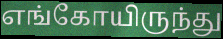
எங்கோயிருந்து